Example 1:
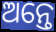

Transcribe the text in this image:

ଅନ୍ତେ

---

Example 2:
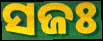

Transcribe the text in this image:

ସଜଃ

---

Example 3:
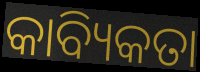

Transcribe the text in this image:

କାବ୍ୟିକତା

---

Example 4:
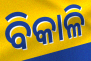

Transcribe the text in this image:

ବିକାଳି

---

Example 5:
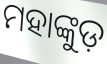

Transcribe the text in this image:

ମହାଙ୍କୁଡ଼